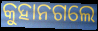
କୁହାନଗଲେ